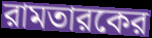
রামতারকের